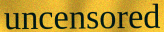
uncensored